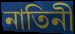
নাতিনী